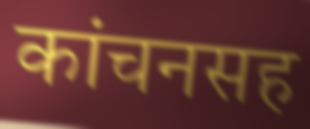
कांचनसह